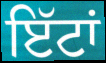
ਇੱਟਾਂ